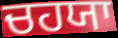
ਚਹਯਾ